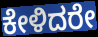
ಕೇಳಿದರೇ